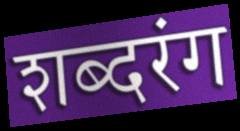
शब्दरंग